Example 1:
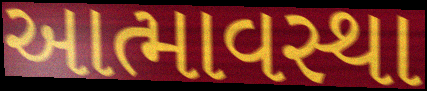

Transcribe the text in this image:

આત્માવસ્થા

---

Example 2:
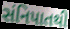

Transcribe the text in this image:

સંનિપાતથી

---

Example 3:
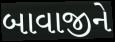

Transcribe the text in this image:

બાવાજીને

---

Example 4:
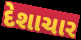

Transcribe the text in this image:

દેશાચાર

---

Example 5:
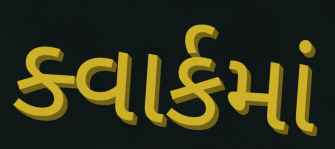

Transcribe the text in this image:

ક્વાર્કમાં